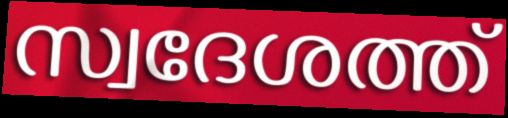
സ്വദേശത്ത്